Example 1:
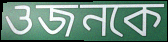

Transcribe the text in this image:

ওজনকে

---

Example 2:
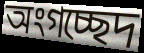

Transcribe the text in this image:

অংগচ্ছেদ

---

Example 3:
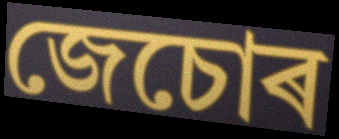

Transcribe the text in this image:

জেচোৰ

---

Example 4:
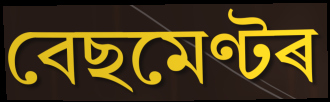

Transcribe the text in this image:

বেছমেণ্টৰ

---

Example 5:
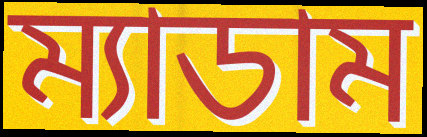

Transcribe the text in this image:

ম্যাডাম